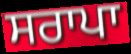
ਸਰਾਪਾ